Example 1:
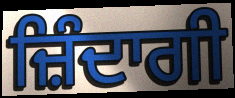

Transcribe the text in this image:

ਜ਼ਿੰਦਾਗੀ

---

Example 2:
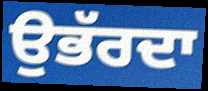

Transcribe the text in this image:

ਉਭੱਰਦਾ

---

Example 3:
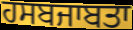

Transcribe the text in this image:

ਹਸਬਜਾਬਤਾ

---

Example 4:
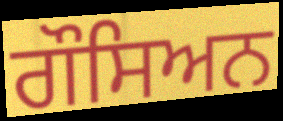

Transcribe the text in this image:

ਗੌਸਿਅਨ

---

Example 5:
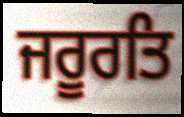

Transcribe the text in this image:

ਜਰੂਰਤਿ